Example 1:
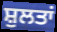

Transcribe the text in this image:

ਸ਼ੁਲਤਾਂ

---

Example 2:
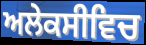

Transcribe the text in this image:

ਅਲੇਕਸੀਵਿਚ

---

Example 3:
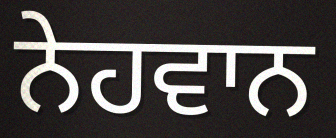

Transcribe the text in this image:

ਨੇਹਵਾਨ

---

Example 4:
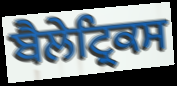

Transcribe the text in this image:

ਬੈਲੇਟ੍ਰਿਕਸ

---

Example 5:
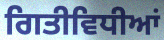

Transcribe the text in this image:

ਗਿਤੀਵਿਧੀਆਂ